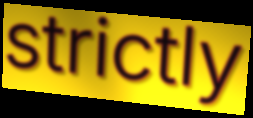
strictly